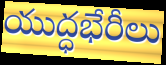
యుద్ధభేరీలు